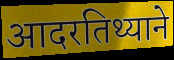
आदरतिथ्याने